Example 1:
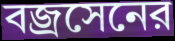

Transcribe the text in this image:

বজ্রসেনের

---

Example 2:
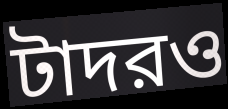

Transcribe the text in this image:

টাদরও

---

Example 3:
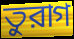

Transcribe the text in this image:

তুরাগ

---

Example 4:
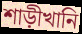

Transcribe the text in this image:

শাড়ীখানি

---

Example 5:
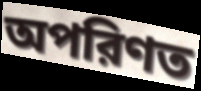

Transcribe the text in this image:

অপরিণত